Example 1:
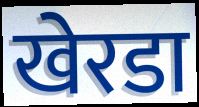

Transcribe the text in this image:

खेरडा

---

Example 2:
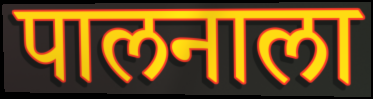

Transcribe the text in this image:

पालनाला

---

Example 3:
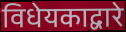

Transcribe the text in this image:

विधेयकाद्वारे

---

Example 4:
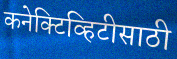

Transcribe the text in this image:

कनेक्टिव्हिटीसाठी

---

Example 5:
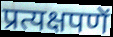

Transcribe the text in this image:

प्रत्यक्षपणें